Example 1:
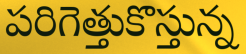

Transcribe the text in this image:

పరిగెత్తుకొస్తున్న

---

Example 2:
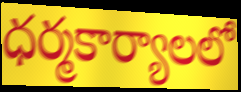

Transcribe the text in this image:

ధర్మకార్యాలలో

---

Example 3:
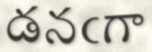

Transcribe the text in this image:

డనఁగా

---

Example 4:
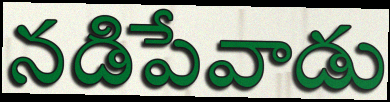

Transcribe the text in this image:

నడిపేవాడు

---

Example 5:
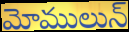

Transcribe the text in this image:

మోములున్